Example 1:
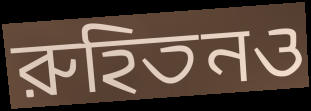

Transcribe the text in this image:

রুহিতনও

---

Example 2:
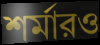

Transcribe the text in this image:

শর্মারও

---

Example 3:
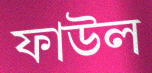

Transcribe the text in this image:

ফাউল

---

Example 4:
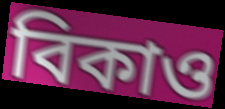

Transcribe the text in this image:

বিকাও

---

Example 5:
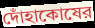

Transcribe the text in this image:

দোঁহাকোষের